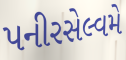
પનીરસેલ્વમે